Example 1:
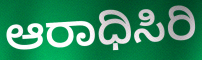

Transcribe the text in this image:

ಆರಾಧಿಸಿರಿ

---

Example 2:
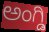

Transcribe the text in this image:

ಅಂಗ್ಡಿ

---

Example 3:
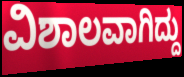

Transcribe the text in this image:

ವಿಶಾಲವಾಗಿದ್ದು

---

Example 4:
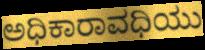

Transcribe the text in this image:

ಅಧಿಕಾರಾವಧಿಯು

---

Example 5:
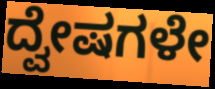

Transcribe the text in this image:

ದ್ವೇಷಗಳೇ